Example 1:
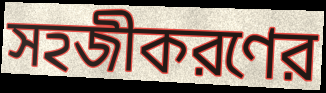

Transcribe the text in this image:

সহজীকরণের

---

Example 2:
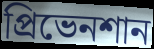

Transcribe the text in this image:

প্রিভেনশান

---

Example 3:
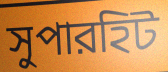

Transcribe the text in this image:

সুপারহিট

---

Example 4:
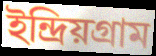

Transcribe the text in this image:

ইন্দ্রিয়গ্রাম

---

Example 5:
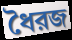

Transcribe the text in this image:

ধৈরজ